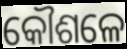
କୌଶଳେ